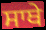
ਸਾਥੇ